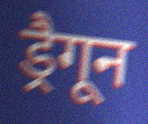
ड्रैगून